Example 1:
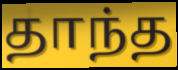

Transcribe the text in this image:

தாந்த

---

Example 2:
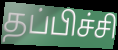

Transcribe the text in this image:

தப்பிச்சி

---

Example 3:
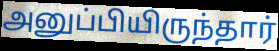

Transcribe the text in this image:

அனுப்பியிருந்தார்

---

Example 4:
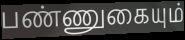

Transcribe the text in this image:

பண்ணுகையும்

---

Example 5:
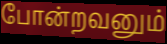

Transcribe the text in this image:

போன்றவனும்